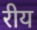
रीय